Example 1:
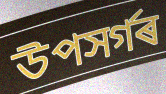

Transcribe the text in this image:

উপসৰ্গৰ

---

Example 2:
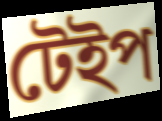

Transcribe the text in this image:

টেইপ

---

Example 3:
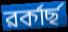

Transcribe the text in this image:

ৱৰ্কাৰ্ছ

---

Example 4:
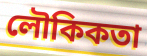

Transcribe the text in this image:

লৌকিকতা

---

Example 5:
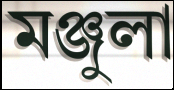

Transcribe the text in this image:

মঞ্জুলা